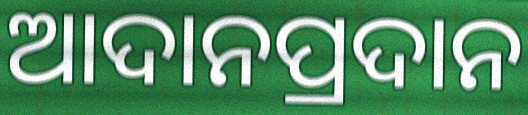
ଆଦାନପ୍ରଦାନ